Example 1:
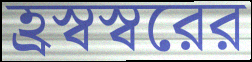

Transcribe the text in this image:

হ্রস্বস্বরের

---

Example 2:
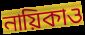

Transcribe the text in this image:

নায়িকাও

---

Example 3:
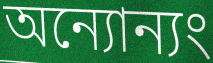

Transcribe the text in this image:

অন্যোন্যং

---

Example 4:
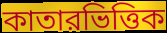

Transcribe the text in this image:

কাতারভিত্তিক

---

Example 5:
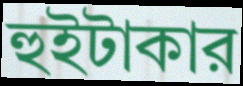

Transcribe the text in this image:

হুইটাকার